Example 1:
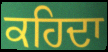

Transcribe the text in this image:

ਕਹਿਦਾ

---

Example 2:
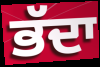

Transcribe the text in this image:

ਭੱਦਾ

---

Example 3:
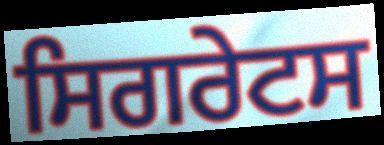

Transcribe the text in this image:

ਸਿਗਰੇਟਸ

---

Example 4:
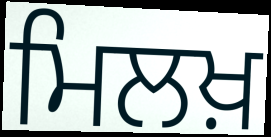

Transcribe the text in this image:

ਮਿਲਖ਼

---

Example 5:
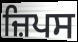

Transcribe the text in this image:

ਜ਼ਿਪਸ